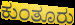
ಕುಂತೂರು